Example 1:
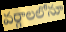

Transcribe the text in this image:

వర్గాలలోనూ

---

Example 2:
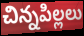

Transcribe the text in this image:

చిన్నపిల్లలు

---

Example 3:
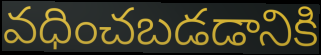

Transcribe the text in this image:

వధించబడడానికి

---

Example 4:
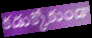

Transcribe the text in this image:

కడుక్కోకుండా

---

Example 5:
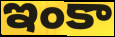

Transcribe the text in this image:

ఇంకా